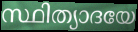
സ്ഥിത്യാദയേ